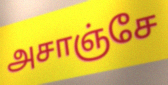
அசாஞ்சே